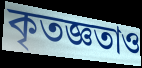
কৃতজ্ঞতাও